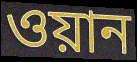
ওয়ান